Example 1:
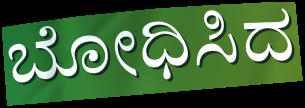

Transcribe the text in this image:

ಬೋಧಿಸಿದ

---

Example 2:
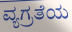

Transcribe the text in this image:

ವ್ಯಗ್ರತೆಯ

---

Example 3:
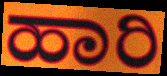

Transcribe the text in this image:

ಹಾರಿ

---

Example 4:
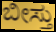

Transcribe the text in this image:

ಬೀಸ್ತು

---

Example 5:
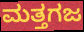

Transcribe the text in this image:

ಮತ್ತಗಜ